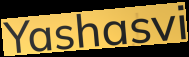
Yashasvi